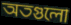
অতগুলো